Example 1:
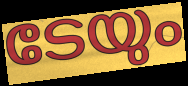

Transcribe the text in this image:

ടേയും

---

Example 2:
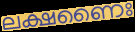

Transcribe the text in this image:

ലക്ഷണൈഃ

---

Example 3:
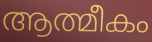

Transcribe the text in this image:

ആത്മീകം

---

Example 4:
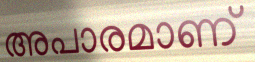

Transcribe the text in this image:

അപാരമാണ്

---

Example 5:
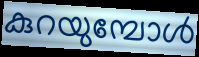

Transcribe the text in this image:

കുറയുമ്പോൾ